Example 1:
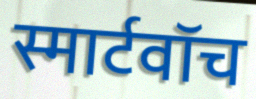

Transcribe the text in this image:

स्मार्टवॉच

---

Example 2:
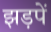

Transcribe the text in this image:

झड़पें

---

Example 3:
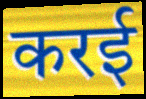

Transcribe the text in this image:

करई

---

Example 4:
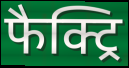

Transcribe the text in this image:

फैक्ट्रि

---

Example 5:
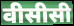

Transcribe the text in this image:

वीसीसी